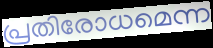
പ്രതിരോധമെന്ന